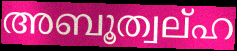
അബൂത്വല്ഹ